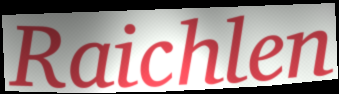
Raichlen